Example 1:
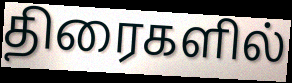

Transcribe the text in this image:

திரைகளில்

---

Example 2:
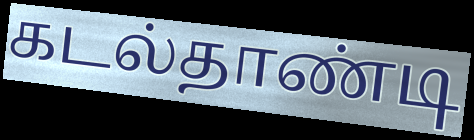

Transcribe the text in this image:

கடல்தாண்டி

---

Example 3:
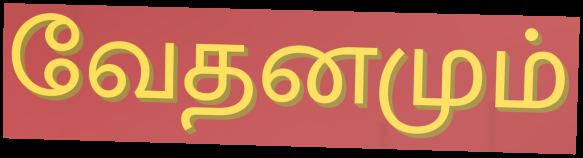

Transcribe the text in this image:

வேதனமும்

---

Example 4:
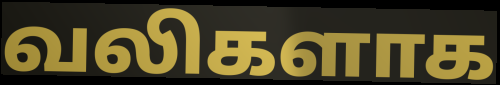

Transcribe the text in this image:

வலிகளாக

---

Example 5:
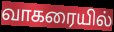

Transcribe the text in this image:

வாகரையில்